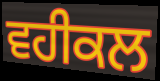
ਵਹੀਕਲ